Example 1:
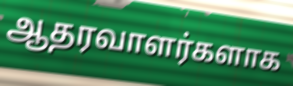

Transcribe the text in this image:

ஆதரவாளர்களாக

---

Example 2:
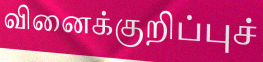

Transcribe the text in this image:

வினைக்குறிப்புச்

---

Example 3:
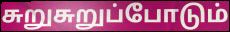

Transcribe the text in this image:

சுறுசுறுப்போடும்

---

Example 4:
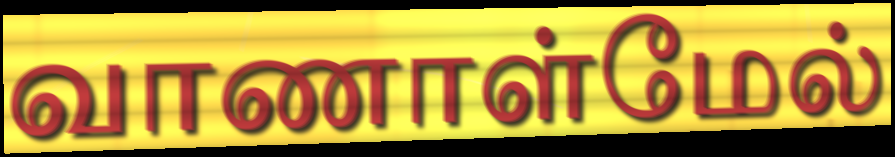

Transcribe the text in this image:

வாணாள்மேல்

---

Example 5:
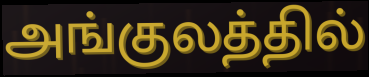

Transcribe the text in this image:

அங்குலத்தில்